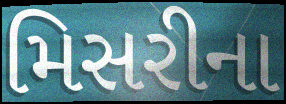
મિસરીના